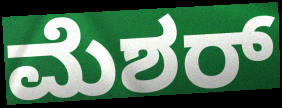
ಮೆಶರ್